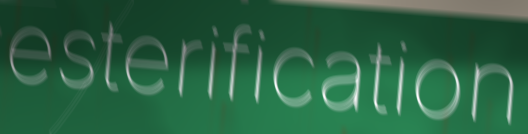
esterification